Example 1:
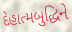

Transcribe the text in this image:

દેહાત્મબુદ્ધિને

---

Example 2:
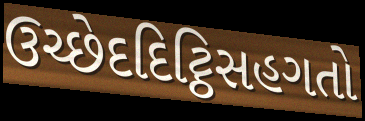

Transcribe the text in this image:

ઉચ્છેદદિટ્ઠિસહગતો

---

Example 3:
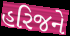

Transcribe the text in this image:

હરિજને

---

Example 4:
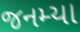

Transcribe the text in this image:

જનમ્યા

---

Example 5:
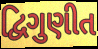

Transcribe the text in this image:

દ્વિગુણીત